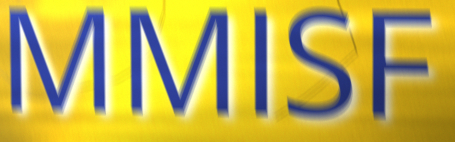
MMISF